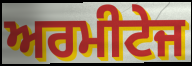
ਅਰਮੀਟੇਜ